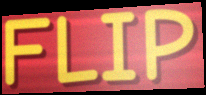
FLIP